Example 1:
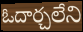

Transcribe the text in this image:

ఓదార్చలేని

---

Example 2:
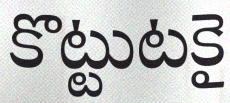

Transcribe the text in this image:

కొట్టుటకై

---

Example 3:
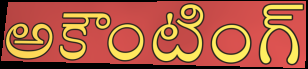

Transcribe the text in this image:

అకౌంటింగ్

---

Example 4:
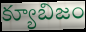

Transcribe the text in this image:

క్యూబిజం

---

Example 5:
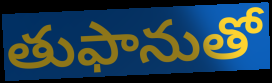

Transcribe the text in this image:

తుఫానుతో